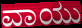
ವಾಯು